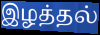
இழத்தல்